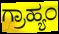
ಗ್ರಾಹ್ಯಂ